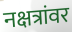
नक्षत्रांवर